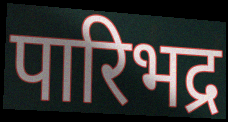
पारिभद्र